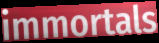
immortals